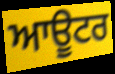
ਆਊਟਰ